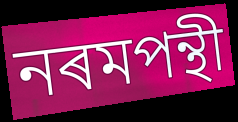
নৰমপন্থী